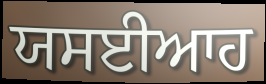
ਯਸਈਆਹ